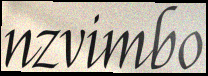
nzvimbo